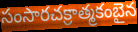
సంసారచక్రాత్మకంబైన